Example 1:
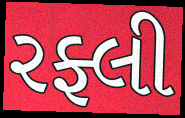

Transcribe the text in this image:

રફ્લી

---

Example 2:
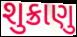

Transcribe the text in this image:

શુક્રાણુ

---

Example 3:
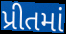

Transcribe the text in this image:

પ્રીતમાં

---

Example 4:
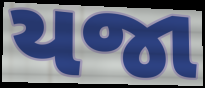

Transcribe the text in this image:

યજા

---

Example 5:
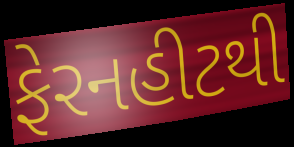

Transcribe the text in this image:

ફેરનહીટથી